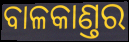
ବାଳକାଣ୍ତର